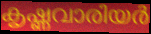
കൃഷ്ണവാരിയർ